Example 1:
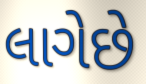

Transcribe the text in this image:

લાગેછે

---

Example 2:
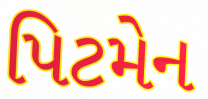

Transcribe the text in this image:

પિટમેન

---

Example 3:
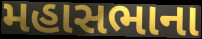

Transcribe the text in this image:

મહાસભાના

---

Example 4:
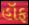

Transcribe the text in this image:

હૉફ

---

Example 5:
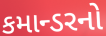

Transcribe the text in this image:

કમાન્ડરનો